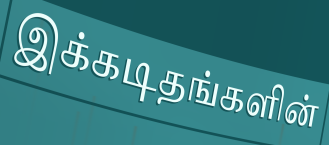
இக்கடிதங்களின்